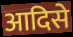
आदिसे